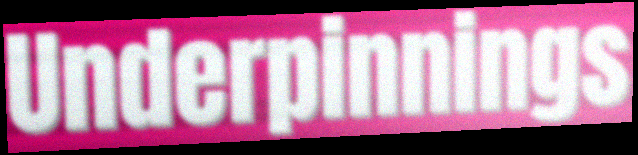
Underpinnings